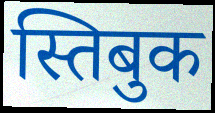
स्तिबुक